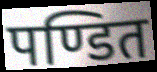
पण्डित